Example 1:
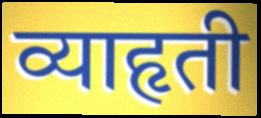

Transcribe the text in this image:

व्याहृती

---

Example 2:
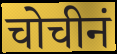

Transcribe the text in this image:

चोचीनं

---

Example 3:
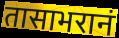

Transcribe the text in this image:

तासाभरानं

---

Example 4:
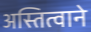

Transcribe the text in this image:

अस्तित्वाने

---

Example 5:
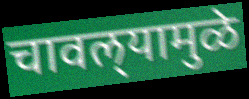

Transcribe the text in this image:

चावल्यामुळे